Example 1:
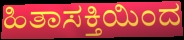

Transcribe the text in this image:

ಹಿತಾಸಕ್ತಿಯಿಂದ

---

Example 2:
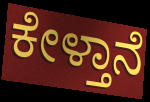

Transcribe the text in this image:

ಕೇಳ್ತಾನೆ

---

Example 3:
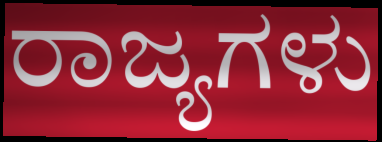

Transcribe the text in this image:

ರಾಜ್ಯಗಳು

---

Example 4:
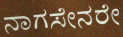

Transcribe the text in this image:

ನಾಗಸೇನರೇ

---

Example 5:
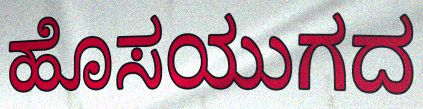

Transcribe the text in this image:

ಹೊಸಯುಗದ